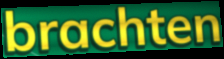
brachten